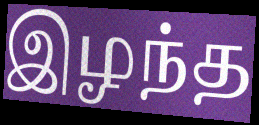
இழந்த